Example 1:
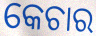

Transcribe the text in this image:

କେଚାର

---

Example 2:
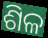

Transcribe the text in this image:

ଶିଳ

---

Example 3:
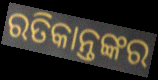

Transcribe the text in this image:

ରତିକାନ୍ତଙ୍କର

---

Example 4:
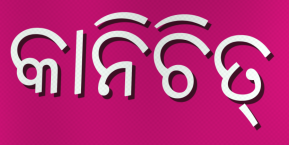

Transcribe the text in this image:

କାନିଚିତ୍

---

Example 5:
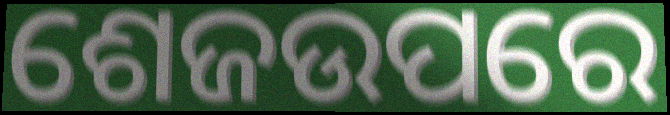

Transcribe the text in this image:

ଶେଜଉପରେ